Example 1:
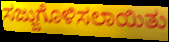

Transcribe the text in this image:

ಸಜ್ಜುಗೊಳಿಸಲಾಯಿತು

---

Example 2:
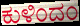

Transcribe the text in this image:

ಕುಳಿಂದಂ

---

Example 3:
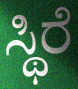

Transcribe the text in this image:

ಸ್ಥಿರೆ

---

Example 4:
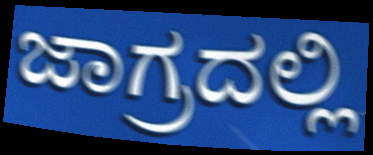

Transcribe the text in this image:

ಜಾಗ್ರದಲ್ಲಿ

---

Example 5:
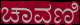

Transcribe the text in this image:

ಚಾವಣಿ